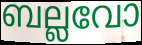
ബല്ലവോ